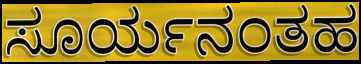
ಸೂರ್ಯನಂತಹ